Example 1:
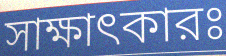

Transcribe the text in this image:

সাক্ষাৎকারঃ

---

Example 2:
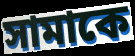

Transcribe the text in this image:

সামাকে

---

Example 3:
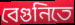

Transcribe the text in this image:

বেগুনিতে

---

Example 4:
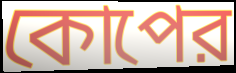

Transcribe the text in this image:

কোপের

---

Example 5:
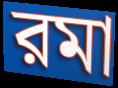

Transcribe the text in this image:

রমা